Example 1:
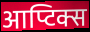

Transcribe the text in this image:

आप्टिक्स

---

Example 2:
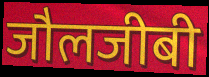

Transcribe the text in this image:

जौलजीबी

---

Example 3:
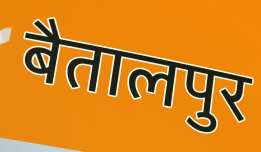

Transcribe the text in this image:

बैतालपुर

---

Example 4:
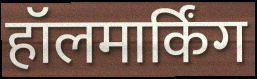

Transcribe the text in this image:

हॉलमार्किंग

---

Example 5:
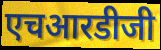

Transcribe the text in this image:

एचआरडीजी